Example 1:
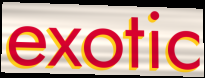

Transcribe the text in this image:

exotic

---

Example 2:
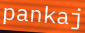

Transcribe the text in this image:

pankaj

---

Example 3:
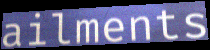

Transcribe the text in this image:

ailments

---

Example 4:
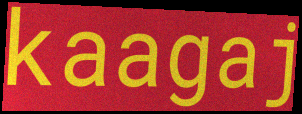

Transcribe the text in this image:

kaagaj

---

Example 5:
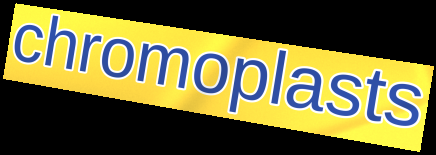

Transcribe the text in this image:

chromoplasts